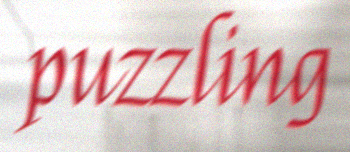
puzzling